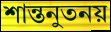
শান্তনুতনয়